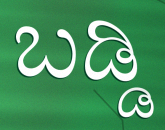
ಬಡ್ಡಿ